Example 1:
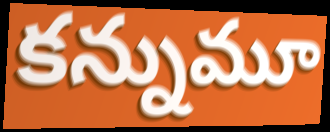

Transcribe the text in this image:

కన్నుమూ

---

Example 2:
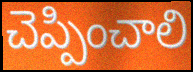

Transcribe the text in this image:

చెప్పించాలి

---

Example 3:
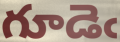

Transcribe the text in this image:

గూడెఁ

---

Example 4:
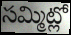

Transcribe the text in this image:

సమ్మిట్లో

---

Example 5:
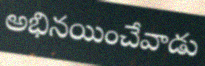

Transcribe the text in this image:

అభినయించేవాడు